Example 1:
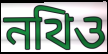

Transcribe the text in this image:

নথিও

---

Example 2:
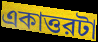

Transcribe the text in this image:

একাত্তরটা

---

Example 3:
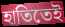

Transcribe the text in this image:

হাতিতেই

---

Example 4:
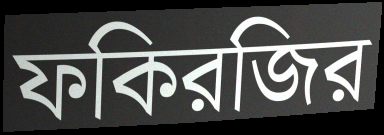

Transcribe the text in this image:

ফকিরজির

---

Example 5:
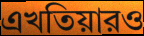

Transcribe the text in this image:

এখতিয়ারও